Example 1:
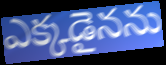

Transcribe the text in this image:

ఎక్కడైనను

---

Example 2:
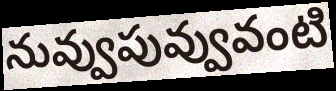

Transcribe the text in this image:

నువ్వుపువ్వువంటి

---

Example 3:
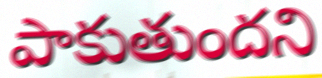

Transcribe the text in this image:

పాకుతుందని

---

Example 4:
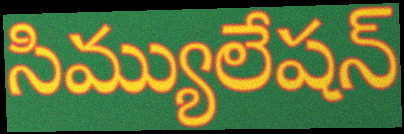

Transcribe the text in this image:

సిమ్యులేషన్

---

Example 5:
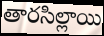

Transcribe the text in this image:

తారసిల్లాయి